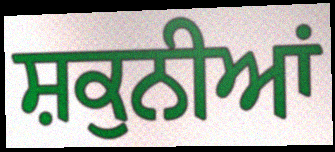
ਸ਼ਕੁਨੀਆਂ